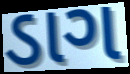
ડાગ